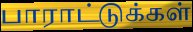
பாராட்டுக்கள்